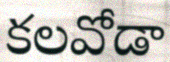
కలవోడా